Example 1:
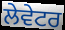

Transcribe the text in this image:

ਲੇਵੇਟਰ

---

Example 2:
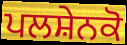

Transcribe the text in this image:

ਪਲਸ਼ੇਨਕੋ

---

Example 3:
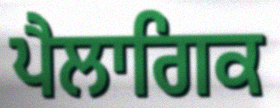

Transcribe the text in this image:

ਪੈਲਾਗਿਕ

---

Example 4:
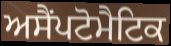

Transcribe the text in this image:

ਅਸੈਂਪਟੋਮੈਟਿਕ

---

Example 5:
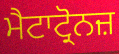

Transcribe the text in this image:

ਮੈਟਾਟ੍ਰੋਨਜ਼